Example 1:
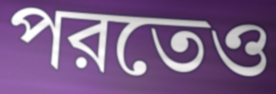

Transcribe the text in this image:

পরতেও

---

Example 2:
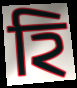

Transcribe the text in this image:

হি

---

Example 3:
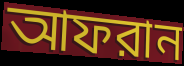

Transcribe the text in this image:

আফরান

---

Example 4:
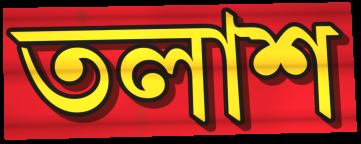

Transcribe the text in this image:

তলাশ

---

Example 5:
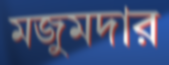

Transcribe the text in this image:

মজুমদার